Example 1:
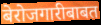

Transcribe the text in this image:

बेरोजगारीबाबत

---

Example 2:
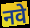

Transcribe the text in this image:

नवे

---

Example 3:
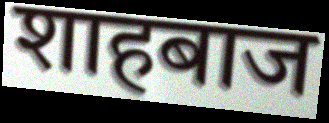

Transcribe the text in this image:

शाहबाज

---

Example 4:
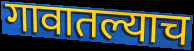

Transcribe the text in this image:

गावातल्याच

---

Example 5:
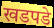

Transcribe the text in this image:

खडपडे